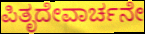
ಪಿತೃದೇವಾರ್ಚನೇ